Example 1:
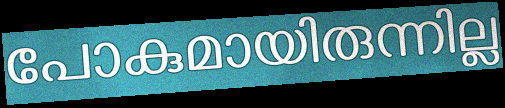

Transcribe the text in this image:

പോകുമായിരുന്നില്ല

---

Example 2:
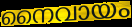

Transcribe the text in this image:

നൈവായം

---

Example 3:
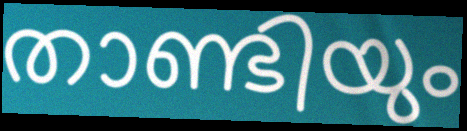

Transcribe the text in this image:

താണ്ടിയും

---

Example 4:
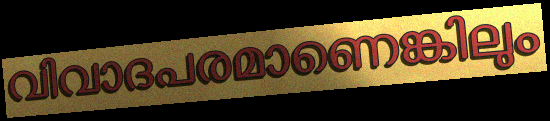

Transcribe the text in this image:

വിവാദപരമാണെങ്കിലും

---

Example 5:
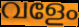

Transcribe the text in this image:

വളേം